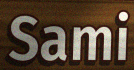
Sami